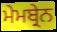
ਮੇਮਬ੍ਰੇਨ